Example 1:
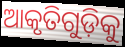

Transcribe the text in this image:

ଆକୃତିଗୁଡ଼ିକୁ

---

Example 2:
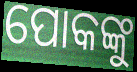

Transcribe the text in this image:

ପୋକଙ୍କୁ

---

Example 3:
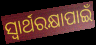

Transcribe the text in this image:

ସ୍ୱାର୍ଥରକ୍ଷାପାଇଁ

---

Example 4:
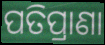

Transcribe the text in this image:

ପତିପ୍ରାଣା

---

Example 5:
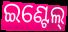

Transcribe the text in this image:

ଇଣ୍ଟେଲ୍